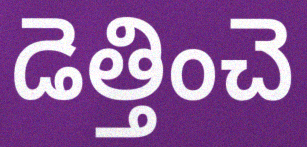
డెత్తించె